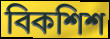
বিকশিশ